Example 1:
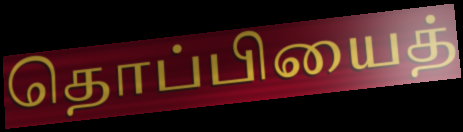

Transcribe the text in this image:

தொப்பியைத்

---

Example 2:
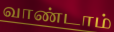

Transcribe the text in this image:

வாண்டாம்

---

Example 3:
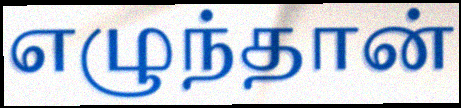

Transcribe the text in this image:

எழுந்தான்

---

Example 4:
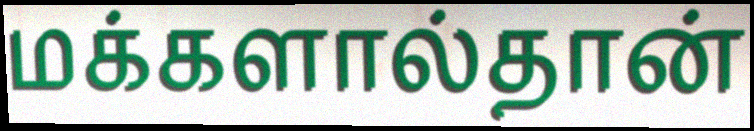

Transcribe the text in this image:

மக்களால்தான்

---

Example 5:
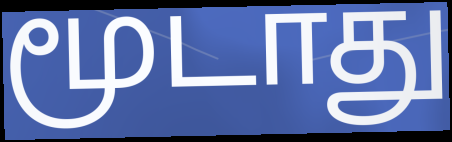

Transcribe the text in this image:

மூடாது